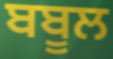
ਬਬੂਲ